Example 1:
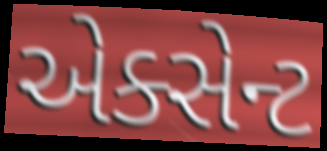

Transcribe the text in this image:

એક્સેન્ટ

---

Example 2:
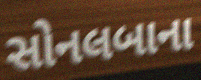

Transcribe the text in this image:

સોનલબાના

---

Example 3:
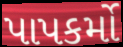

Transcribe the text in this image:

પાપકર્મો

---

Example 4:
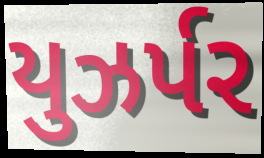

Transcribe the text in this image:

યુઝર્પર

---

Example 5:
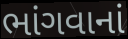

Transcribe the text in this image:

ભાંગવાનાં